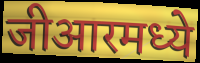
जीआरमध्ये